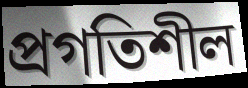
প্ৰগতিশীল